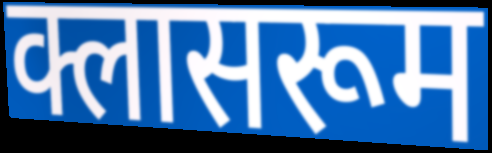
क्लासरूम